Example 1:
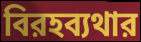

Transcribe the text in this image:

বিরহব্যথার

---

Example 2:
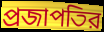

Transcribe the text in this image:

প্রজাপতির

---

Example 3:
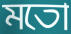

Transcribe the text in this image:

মতো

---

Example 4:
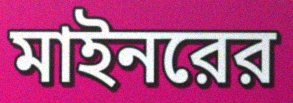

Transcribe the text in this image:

মাইনরের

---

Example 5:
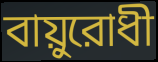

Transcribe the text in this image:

বায়ুরোধী